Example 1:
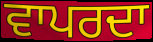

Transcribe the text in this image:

ਵਾਪਰਦਾ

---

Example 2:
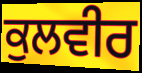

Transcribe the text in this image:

ਕੁਲਵੀਰ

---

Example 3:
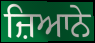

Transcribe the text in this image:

ਜ਼ਿਆਨੇ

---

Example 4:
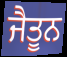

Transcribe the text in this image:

ਜੈਤੂਨ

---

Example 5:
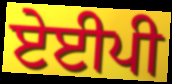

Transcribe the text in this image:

ਏਈਪੀ